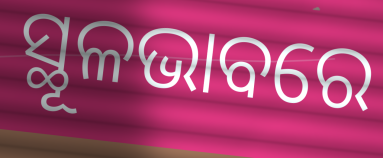
ସ୍ଥୂଳଭାବରେ